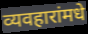
व्यवहारांमधे